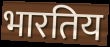
भारतिय